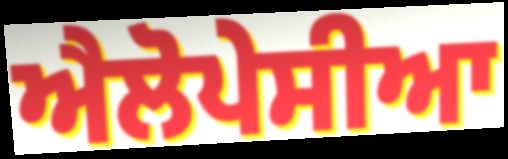
ਐਲੋਪੇਸੀਆ